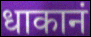
धाकानं